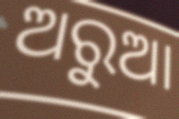
ଅରୁଆ